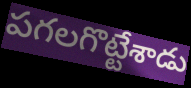
పగలగొట్టేశాడు